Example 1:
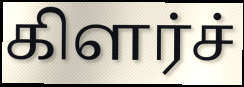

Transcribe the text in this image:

கிளர்ச்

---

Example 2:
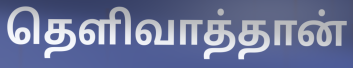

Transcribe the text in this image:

தெளிவாத்தான்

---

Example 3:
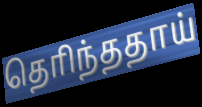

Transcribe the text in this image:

தெரிந்ததாய்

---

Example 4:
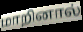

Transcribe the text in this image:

மாறினால்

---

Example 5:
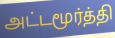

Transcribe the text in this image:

அட்டமூர்த்தி